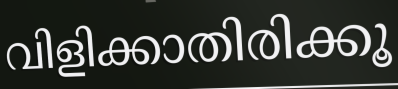
വിളിക്കാതിരിക്കൂ